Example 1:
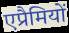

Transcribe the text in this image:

एप्रैमियों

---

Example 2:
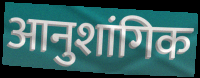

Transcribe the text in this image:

आनुशांगिक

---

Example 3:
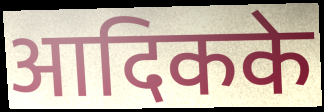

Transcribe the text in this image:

आदिकके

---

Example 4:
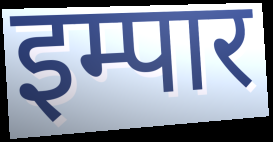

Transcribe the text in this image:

इम्पार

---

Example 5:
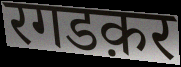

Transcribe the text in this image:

रगडक़र